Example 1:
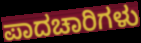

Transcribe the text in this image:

ಪಾದಚಾರಿಗಳು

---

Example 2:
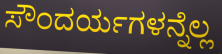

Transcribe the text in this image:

ಸೌಂದರ್ಯಗಳನ್ನೆಲ್ಲ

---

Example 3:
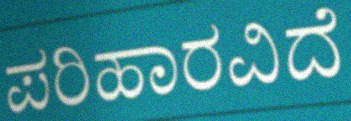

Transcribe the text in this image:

ಪರಿಹಾರವಿದೆ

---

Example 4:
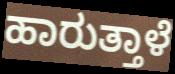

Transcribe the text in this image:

ಹಾರುತ್ತಾಳೆ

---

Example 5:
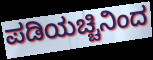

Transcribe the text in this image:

ಪಡಿಯಚ್ಚಿನಿಂದ